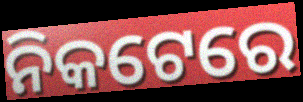
ନିକଟେରେ